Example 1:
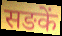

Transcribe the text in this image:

सङकें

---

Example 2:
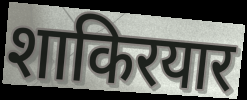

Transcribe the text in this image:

शाकिरयार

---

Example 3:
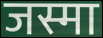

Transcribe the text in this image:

जस्मा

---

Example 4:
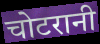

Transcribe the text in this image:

चोटरानी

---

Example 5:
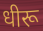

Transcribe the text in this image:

धीरू